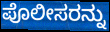
ಪೊಲೀಸರನ್ನು